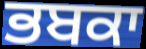
ਭਬਕਾ